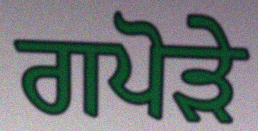
ਗਪੋੜੇ